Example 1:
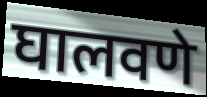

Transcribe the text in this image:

घालवणे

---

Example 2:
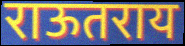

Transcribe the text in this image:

राऊतराय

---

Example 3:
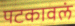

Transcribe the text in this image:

पटकावलं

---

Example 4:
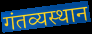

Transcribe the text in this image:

गंतव्यस्थान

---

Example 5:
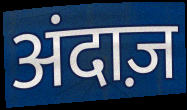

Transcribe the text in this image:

अंदाज़